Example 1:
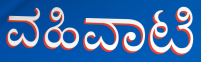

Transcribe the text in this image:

ವಹಿವಾಟಿ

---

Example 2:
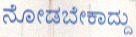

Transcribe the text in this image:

ನೋಡಬೇಕಾದ್ದು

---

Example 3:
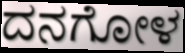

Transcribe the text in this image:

ದನಗೋಳ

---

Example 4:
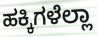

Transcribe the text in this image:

ಹಕ್ಕಿಗಳೆಲ್ಲಾ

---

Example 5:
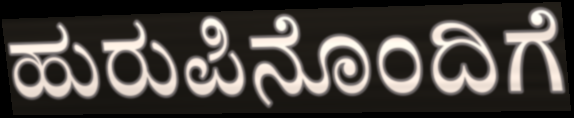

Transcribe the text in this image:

ಹುರುಪಿನೊಂದಿಗೆ